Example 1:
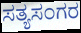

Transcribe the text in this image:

ಸತ್ಯಸಂಗರ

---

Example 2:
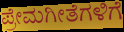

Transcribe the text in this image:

ಪ್ರೇಮಗೀತೆಗಳಿಗೆ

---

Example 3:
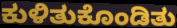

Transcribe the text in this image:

ಕುಳಿತುಕೊಂಡಿತು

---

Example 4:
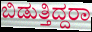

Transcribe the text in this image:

ಬಿಡುತ್ತಿದ್ದರಾ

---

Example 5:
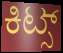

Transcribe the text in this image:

ಕಿಟ್ಸ್